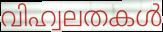
വിഹ്വലതകൾ